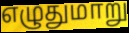
எழுதுமாறு